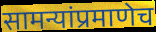
सामन्यांप्रमाणेच